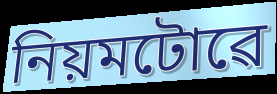
নিয়মটোৱে